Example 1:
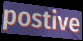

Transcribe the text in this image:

postive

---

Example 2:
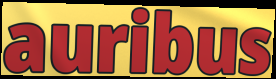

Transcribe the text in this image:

auribus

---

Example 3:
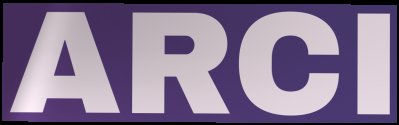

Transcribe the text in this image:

ARCI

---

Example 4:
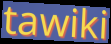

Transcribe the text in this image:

tawiki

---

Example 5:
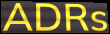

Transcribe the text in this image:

ADRs